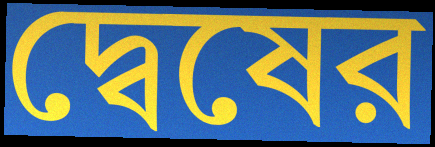
দ্বেষের